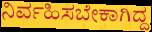
ನಿರ್ವಹಿಸಬೇಕಾಗಿದ್ದ